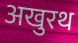
अखुरथ